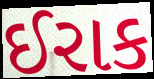
ઈરાક